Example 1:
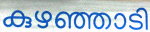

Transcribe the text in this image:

കുഴഞ്ഞാടി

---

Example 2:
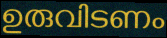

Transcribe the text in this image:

ഉരുവിടണം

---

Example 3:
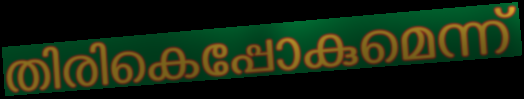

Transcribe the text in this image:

തിരികെപ്പോകുമെന്ന്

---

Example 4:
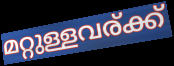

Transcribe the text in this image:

മറ്റുള്ളവര്ക്ക്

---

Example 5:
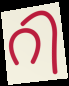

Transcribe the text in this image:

റി